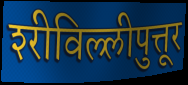
श्रीविल्लीपुत्तूर